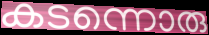
കടന്നൊരു